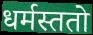
धर्मस्ततो